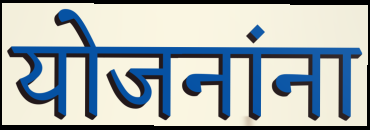
योजनांना